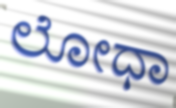
ಲೋಧಾ